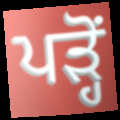
ਪੜ੍ਹੋਂ